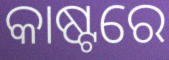
କାଷ୍ଟରେ